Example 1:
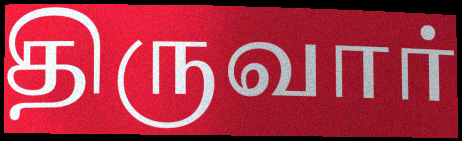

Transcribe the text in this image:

திருவார்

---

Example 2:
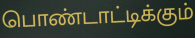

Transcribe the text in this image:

பொண்டாட்டிக்கும்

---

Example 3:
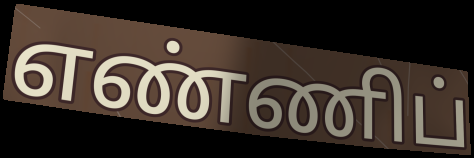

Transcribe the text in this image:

எண்ணிப்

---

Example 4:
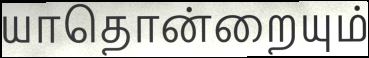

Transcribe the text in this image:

யாதொன்றையும்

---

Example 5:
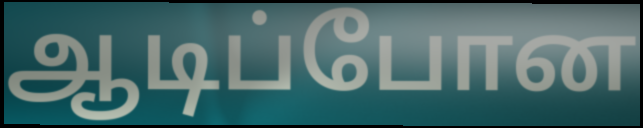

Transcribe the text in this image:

ஆடிப்போன